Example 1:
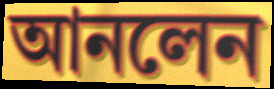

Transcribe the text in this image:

আনলেন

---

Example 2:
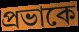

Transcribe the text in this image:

প্রভাকে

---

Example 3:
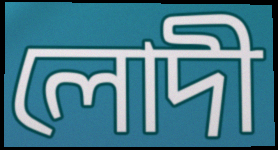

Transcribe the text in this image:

লোদী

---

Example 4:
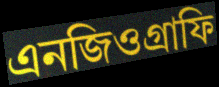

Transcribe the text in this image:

এনজিওগ্রাফি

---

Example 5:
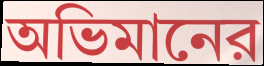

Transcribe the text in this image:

অভিমানের